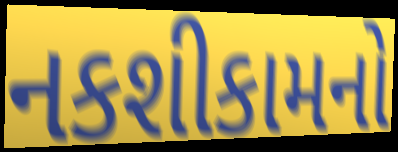
નકશીકામનો